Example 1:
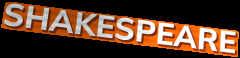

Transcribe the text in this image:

SHAKESPEARE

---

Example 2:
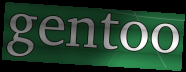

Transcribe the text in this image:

gentoo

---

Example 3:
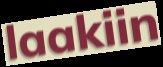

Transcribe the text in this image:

laakiin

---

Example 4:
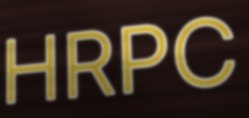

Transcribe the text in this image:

HRPC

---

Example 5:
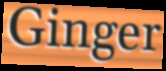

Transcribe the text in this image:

Ginger